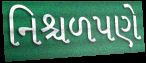
નિશ્ચળપણે